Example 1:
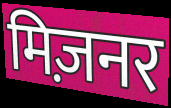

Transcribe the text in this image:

मिज़नर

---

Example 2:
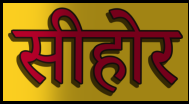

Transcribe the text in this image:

सीहोर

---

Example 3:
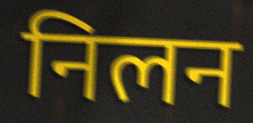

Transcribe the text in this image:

निलन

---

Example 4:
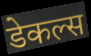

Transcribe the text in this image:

डेकल्स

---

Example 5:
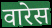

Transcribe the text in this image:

वारेस